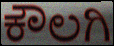
ಕೌಲಗಿ